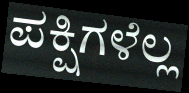
ಪಕ್ಷಿಗಳೆಲ್ಲ